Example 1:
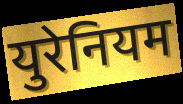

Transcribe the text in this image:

युरेनियम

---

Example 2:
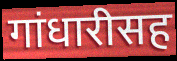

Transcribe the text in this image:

गांधारीसह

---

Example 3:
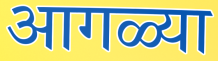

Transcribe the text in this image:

आगळ्या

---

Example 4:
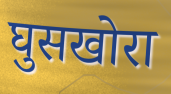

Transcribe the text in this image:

घुसखोरा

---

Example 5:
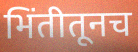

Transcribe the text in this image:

भिंतीतूनच